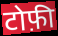
टोफ़ी